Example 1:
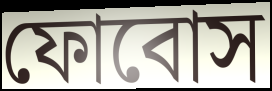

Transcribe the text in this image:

ফোবোস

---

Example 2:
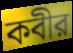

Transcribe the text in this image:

কবীর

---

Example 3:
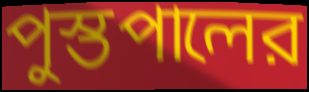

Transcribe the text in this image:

পুস্তপালের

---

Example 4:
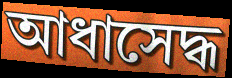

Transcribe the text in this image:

আধাসেদ্ধ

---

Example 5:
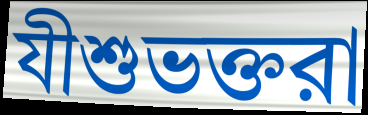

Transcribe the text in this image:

যীশুভক্তরা